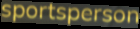
sportsperson